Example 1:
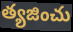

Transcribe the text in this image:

త్యజించు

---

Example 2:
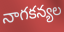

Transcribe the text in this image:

నాగకన్యల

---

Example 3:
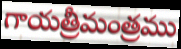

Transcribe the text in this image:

గాయత్రీమంత్రము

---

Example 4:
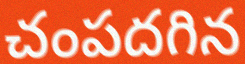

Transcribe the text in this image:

చంపదగిన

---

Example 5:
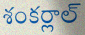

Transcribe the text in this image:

శంకర్లాల్